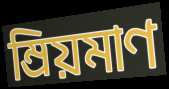
ম্রিয়মাণ